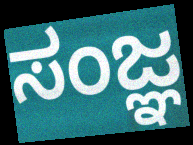
ಸಂಜ್ಞ